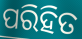
ପରିହିତ